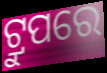
ଟ୍ରୁପରେ